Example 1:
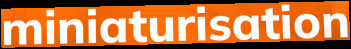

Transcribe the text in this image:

miniaturisation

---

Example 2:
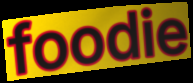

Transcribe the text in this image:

foodie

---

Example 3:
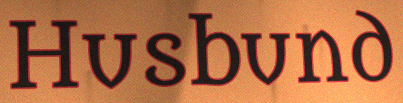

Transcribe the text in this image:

Husbund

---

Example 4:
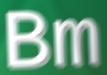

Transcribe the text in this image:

Bm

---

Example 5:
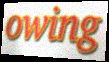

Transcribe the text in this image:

owing